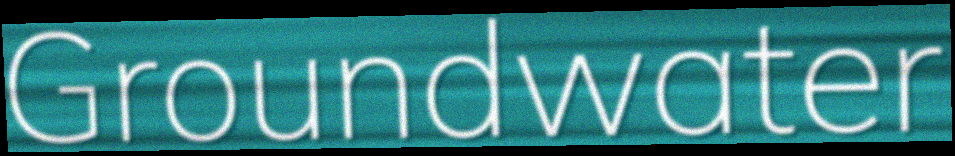
Groundwater